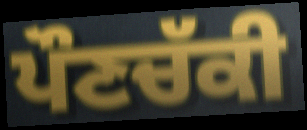
ਪੌਣਚੱਕੀ